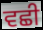
ਵਛੀ